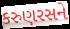
કરુણરસને